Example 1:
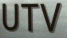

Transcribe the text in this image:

UTV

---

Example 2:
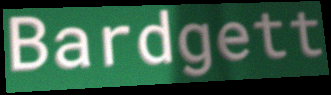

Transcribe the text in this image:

Bardgett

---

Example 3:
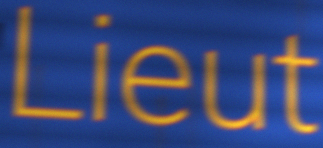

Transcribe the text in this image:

Lieut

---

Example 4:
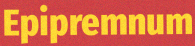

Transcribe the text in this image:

Epipremnum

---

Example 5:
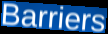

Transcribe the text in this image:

Barriers